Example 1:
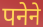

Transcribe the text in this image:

पनेने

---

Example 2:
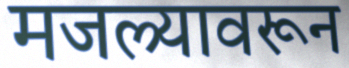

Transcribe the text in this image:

मजल्यावरून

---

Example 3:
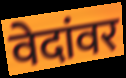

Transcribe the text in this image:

वेदांवर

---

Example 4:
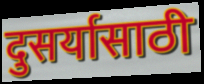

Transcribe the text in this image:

दुसर्यासाठी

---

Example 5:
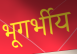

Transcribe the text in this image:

भूगर्भीय